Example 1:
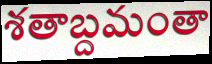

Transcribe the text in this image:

శతాబ్దమంతా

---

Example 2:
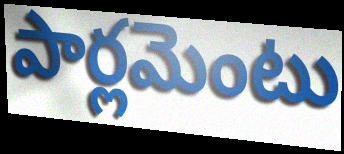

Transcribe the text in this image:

పార్లమెంటు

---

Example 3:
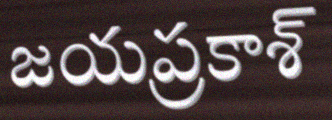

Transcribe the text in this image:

జయప్రకాశ్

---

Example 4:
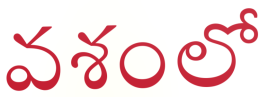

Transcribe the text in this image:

వశంలో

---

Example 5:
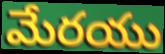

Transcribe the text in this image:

మేరయు